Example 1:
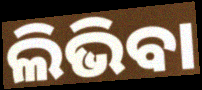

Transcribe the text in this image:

ଲିଭିବା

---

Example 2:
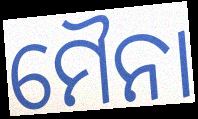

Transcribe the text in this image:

ମୈନା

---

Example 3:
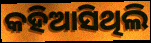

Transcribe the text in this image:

କହିଆସିଥିଲି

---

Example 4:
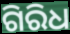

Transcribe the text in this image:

ଗିରିଧ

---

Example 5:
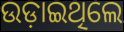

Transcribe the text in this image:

ଉଡ଼ାଇଥିଲେ